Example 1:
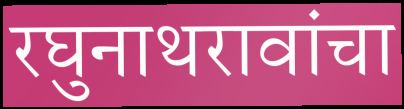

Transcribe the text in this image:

रघुनाथरावांचा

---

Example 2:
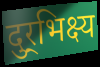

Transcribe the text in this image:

दुर्भिक्ष्य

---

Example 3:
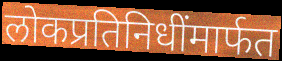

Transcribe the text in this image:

लोकप्रतिनिधींमार्फत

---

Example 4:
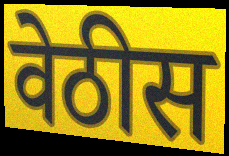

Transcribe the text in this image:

वेठीस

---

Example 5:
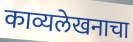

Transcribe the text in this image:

काव्यलेखनाचा